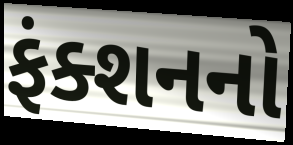
ફંક્શનનો